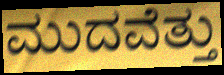
ಮುದವೆತ್ತು